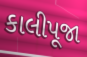
કાલીપૂજા